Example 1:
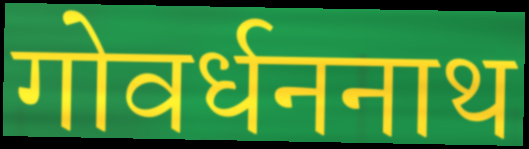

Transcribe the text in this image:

गोवर्धननाथ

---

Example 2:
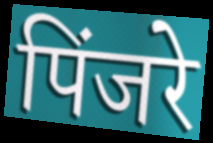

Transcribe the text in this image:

पिंजरे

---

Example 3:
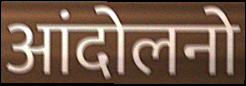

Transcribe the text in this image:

आंदोलनो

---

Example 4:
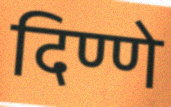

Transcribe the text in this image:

दिण्णे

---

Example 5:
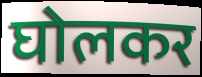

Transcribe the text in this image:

घोलकर